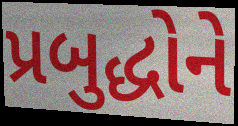
પ્રબુદ્ધોને